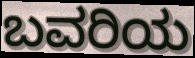
ಬವರಿಯ